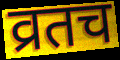
व्रतच